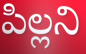
పిల్లని